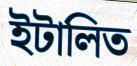
ইটালিত